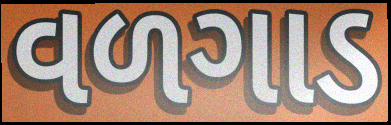
વળગાડ